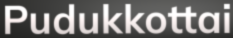
Pudukkottai